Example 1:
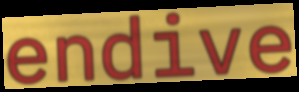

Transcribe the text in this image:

endive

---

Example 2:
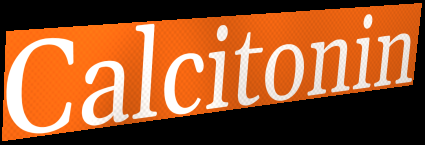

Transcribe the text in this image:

Calcitonin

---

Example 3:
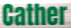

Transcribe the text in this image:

Cather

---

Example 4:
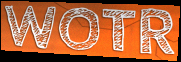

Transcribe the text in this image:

WOTR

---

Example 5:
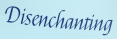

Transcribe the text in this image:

Disenchanting